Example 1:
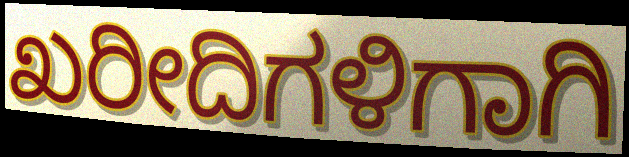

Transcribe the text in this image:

ಖರೀದಿಗಳಿಗಾಗಿ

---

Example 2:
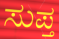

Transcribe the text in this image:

ಸುಪ್ತ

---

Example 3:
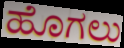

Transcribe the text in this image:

ಹೊಗಲು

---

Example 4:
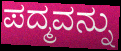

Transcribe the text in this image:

ಪದ್ಮವನ್ನು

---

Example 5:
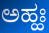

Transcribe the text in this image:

ಅಹ್ಹಃ